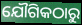
ଯୌଗିକଠାରୁ